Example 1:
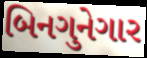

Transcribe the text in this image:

બિનગુનેગાર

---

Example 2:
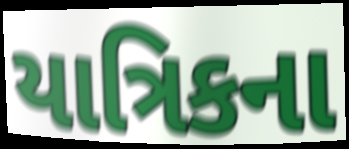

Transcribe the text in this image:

યાત્રિકના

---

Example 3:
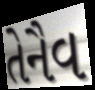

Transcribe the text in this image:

તેનૈવ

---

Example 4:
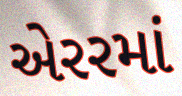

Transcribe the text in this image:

એરરમાં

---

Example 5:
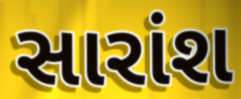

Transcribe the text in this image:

સારાંશ